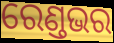
ରେଣ୍ଡଭର